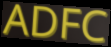
ADFC